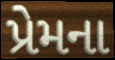
પ્રેમના